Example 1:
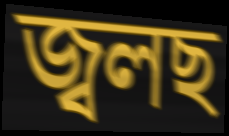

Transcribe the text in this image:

জ্বলছ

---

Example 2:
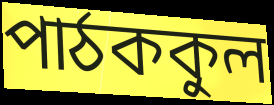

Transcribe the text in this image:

পাঠককুল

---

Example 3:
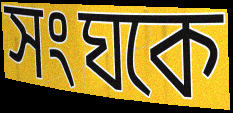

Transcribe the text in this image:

সংঘকে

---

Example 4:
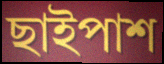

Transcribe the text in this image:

ছাইপাশ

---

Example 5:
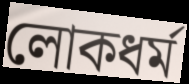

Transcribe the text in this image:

লোকধর্ম